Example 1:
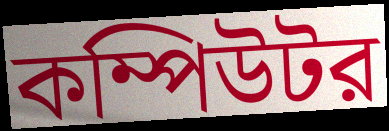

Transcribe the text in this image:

কম্পিউটর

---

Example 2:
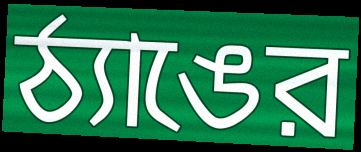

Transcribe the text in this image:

ঠ্যাঙের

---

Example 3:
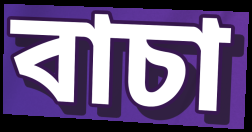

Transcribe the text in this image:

বাচা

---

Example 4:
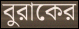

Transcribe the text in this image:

বুরাকের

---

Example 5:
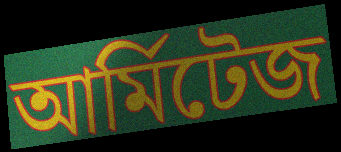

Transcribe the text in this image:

আর্মিটেজ